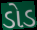
ડોડ